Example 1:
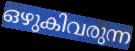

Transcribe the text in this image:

ഒഴുകിവരുന്ന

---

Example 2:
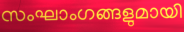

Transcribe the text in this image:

സംഘാംഗങ്ങളുമായി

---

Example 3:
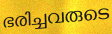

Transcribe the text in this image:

ഭരിച്ചവരുടെ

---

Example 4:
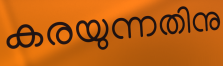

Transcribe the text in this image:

കരയുന്നതിനു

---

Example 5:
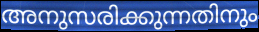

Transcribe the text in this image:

അനുസരിക്കുന്നതിനും